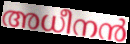
അധീനൻ